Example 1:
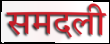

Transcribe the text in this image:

समदली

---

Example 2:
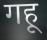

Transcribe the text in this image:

गहू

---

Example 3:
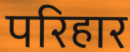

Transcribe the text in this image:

परिहार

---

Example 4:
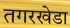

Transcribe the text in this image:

तगरखेडा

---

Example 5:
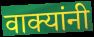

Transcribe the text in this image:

वाक्यांनी